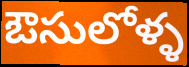
ఔసులోళ్ళ